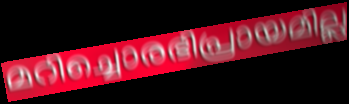
മറിച്ചൊരഭിപ്രായമില്ല